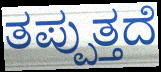
ತಪ್ಪುತ್ತದೆ